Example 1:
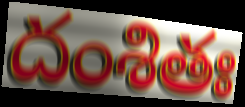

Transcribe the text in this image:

దంశితః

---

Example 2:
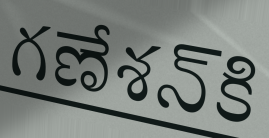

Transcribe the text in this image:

గణేశన్‍కి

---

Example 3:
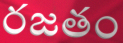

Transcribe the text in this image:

రజతం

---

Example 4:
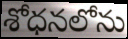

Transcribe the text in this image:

శోధనలోను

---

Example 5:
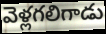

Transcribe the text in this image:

వెళ్లగలిగాడు